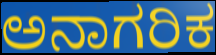
ಅನಾಗರಿಕ